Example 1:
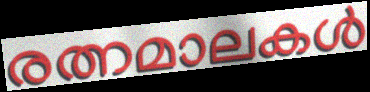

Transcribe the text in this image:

രത്നമാലകൾ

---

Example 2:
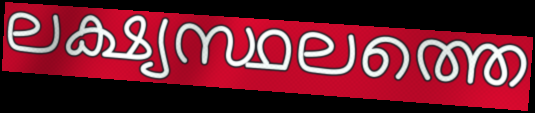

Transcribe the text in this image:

ലക്ഷ്യസ്ഥലത്തെ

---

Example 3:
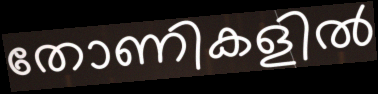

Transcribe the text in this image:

തോണികളിൽ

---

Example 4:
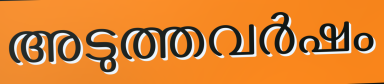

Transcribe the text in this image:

അടുത്തവർഷം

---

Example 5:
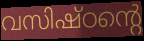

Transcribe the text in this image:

വസിഷ്ഠന്റെ